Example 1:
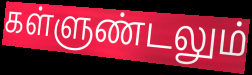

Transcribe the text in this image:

கள்ளுண்டலும்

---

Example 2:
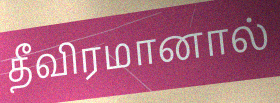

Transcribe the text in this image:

தீவிரமானால்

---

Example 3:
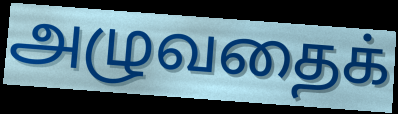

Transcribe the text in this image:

அழுவதைக்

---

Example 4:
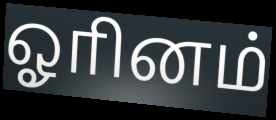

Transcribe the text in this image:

ஓரினம்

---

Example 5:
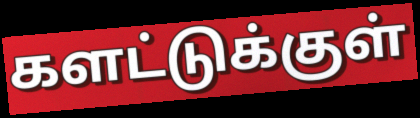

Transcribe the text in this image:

களட்டுக்குள்